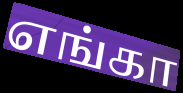
எங்கா